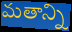
మతాన్ని